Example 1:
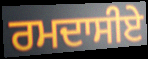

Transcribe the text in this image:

ਰਮਦਾਸੀਏ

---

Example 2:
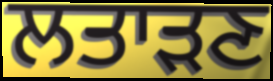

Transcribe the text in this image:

ਲਤਾੜਣ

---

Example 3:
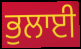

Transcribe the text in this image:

ਭੁਲਾਈ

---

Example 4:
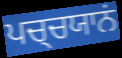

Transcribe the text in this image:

ਪਚ੍ਚਯਾਨਂ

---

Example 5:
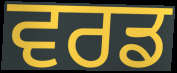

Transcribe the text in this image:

ਵਰਡ